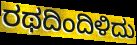
ರಥದಿಂದಿಳಿದು